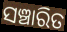
ସଞ୍ଚାରିତ